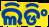
ଲିଡିଂ